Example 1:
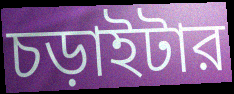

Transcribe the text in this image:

চড়াইটার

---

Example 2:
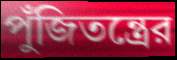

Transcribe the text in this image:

পুঁজিতন্ত্রের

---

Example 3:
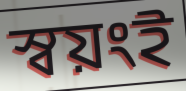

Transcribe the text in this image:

স্বয়ংই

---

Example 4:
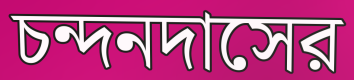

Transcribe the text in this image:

চন্দনদাসের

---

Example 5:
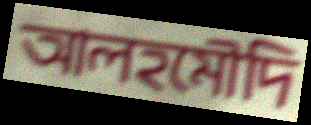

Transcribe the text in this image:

আলহমৌদি